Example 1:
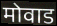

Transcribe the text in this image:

मोवाड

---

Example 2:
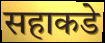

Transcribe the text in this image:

सहाकडे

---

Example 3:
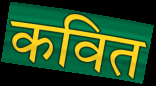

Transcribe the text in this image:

कवित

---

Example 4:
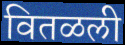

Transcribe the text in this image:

वितळली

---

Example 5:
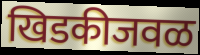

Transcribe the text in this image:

खिडकीजवळ